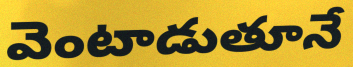
వెంటాడుతూనే